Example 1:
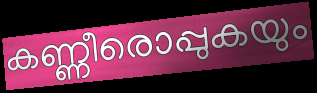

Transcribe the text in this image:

കണ്ണീരൊപ്പുകയും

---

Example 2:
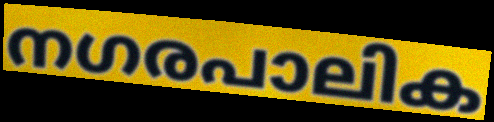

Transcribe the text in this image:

നഗരപാലിക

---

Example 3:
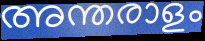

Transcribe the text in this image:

അന്തരാളം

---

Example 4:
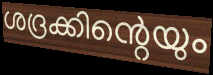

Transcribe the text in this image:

ശദ്രക്കിന്റെയും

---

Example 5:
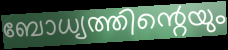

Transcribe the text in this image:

ബോധ്യത്തിന്റെയും